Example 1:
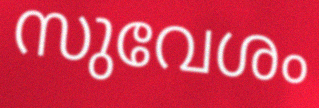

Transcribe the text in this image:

സുവേശം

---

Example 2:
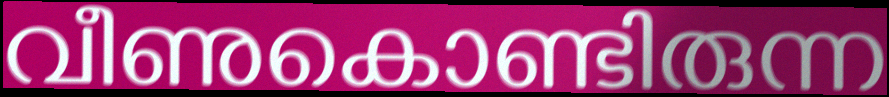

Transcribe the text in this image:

വീണുകൊണ്ടിരുന്ന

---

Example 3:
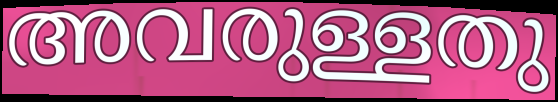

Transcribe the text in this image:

അവരുള്ളതു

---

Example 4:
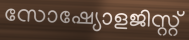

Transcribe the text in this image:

സോഷ്യോളജിസ്റ്റ്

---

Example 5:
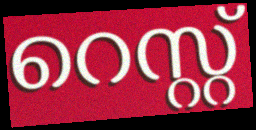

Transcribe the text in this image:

റെസ്റ്റ്